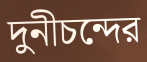
দুনীচন্দের